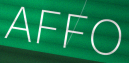
AFFO